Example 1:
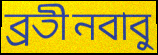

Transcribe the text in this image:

ব্রতীনবাবু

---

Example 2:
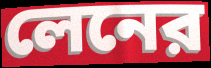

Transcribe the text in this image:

লেনের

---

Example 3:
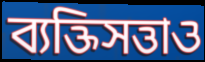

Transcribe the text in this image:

ব্যক্তিসত্তাও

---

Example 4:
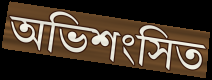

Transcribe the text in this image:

অভিশংসিত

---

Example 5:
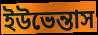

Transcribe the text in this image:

ইউভেন্তাস